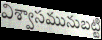
విశ్వాసమునుబట్టి